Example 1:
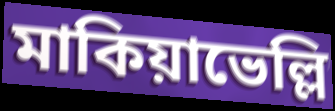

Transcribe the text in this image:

মাকিয়াভেল্লি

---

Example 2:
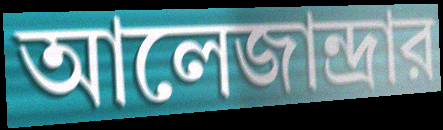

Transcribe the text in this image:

আলেজান্দ্রার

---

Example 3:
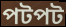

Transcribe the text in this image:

পটপট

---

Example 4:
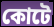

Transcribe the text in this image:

কোটে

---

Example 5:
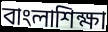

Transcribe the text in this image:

বাংলাশিক্ষা